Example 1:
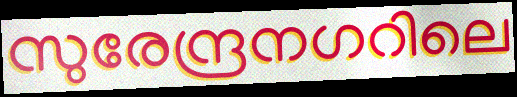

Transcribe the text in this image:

സുരേന്ദ്രനഗറിലെ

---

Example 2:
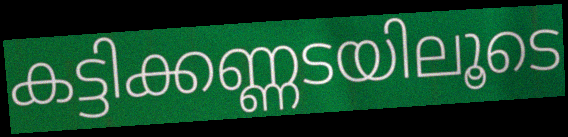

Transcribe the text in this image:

കട്ടിക്കണ്ണടയിലൂടെ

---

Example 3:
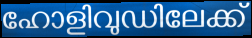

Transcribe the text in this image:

ഹോളിവുഡിലേക്ക്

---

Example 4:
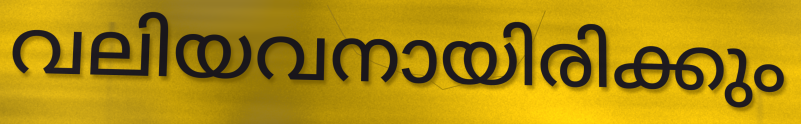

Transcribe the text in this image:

വലിയവനായിരിക്കും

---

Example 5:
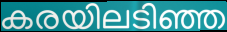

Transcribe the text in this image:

കരയിലടിഞ്ഞ